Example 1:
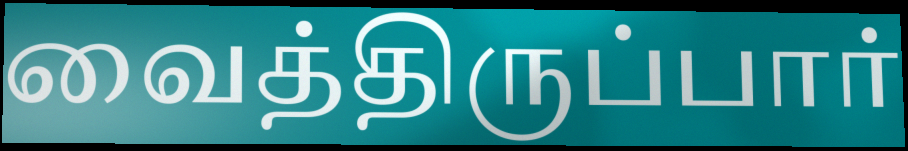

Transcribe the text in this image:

வைத்திருப்பார்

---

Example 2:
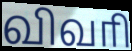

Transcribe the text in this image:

விவரி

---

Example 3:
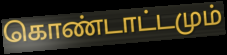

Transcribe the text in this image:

கொண்டாட்டமும்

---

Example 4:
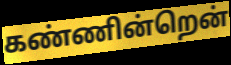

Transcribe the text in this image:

கண்ணின்றென்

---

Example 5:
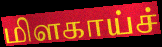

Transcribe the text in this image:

மிளகாய்ச்